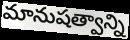
మానుషత్వాన్ని